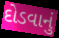
દોડવાનું